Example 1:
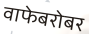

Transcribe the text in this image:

वाफेबरोबर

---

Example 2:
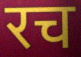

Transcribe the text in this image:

रच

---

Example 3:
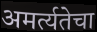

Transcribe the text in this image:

अमर्त्यतेचा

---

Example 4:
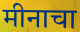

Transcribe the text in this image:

मीनाचा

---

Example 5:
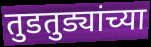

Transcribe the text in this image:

तुडतुड्यांच्या